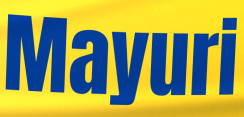
Mayuri